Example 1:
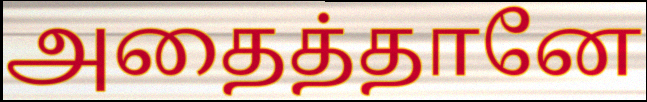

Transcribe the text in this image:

அதைத்தானே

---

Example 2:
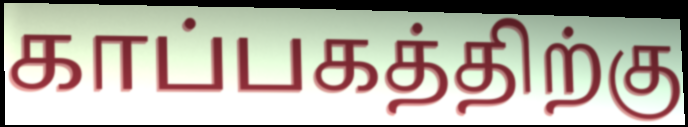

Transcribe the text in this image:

காப்பகத்திற்கு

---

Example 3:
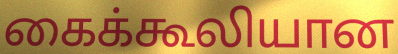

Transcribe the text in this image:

கைக்கூலியான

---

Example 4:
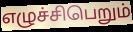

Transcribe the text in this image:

எழுச்சிபெறும்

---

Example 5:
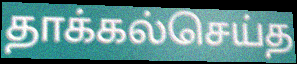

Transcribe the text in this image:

தாக்கல்செய்த